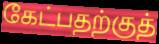
கேட்பதற்குத்